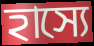
হাস্যে